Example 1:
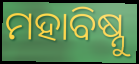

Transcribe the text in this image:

ମହାବିଷ୍ନୁ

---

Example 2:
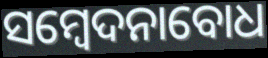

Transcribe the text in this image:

ସମ୍ବେଦନାବୋଧ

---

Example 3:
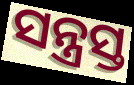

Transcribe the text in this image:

ସନ୍ତ୍ରସ୍ତ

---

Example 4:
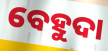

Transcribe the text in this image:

ବେହୁଦା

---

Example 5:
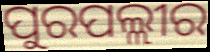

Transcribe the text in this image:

ପୁରପଲ୍ଲୀର